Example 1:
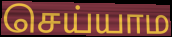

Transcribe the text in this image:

செய்யாம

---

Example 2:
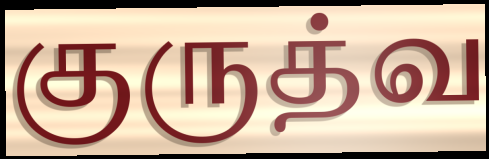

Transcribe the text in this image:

குருத்வ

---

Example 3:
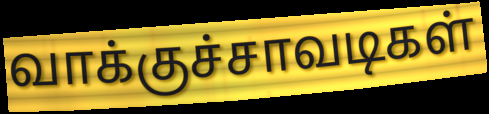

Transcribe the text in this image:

வாக்குச்சாவடிகள்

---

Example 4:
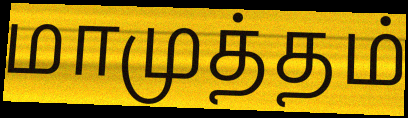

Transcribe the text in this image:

மாமுத்தம்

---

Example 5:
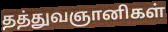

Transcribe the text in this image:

தத்துவஞானிகள்